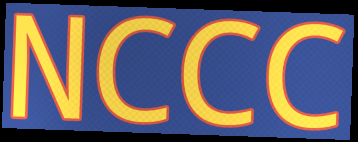
NCCC